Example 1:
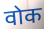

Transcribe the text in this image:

वोक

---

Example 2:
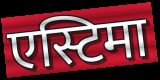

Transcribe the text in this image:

एस्टिमा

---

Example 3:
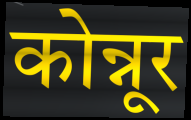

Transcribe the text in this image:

कोन्नूर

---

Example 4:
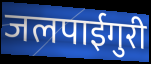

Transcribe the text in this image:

जलपाईगुरी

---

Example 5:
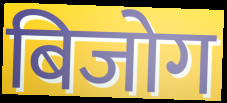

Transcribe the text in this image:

बिजोग